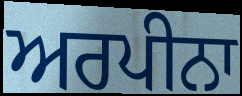
ਅਰਪੀਨਾ